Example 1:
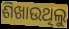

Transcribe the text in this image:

ଶିଖାଉଥିଲୁ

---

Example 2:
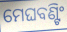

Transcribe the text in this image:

ମେଘବଣ୍ଟିଂ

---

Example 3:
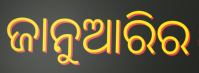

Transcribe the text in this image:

ଜାନୁଆରିର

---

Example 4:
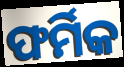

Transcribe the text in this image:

ଫର୍ମିକ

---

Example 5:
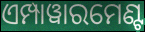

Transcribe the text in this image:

ଏମ୍ପାୱାରମେଣ୍ଟ